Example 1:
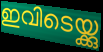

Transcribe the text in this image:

ഇവിടെയ്ക്കു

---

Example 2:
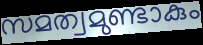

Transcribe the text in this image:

സമത്വമുണ്ടാകും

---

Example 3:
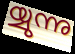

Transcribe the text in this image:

യ്യുന്നു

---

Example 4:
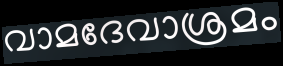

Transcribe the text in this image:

വാമദേവാശ്രമം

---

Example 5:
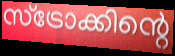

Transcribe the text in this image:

സ്ട്രോക്കിന്റെ